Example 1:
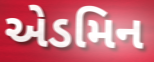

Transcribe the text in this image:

એડમિન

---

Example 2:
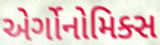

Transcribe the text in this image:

એર્ગોનોમિક્સ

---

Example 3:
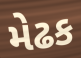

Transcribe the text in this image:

મેઢક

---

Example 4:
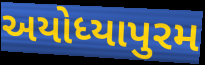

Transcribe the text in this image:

અયોધ્યાપુરમ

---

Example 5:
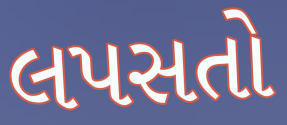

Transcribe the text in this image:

લપસતો